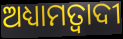
ଅଧ୍ୟାମତ୍ବାଦୀ